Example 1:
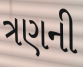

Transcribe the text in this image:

ત્રણની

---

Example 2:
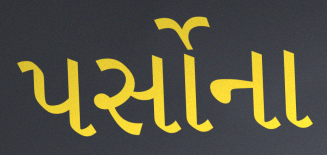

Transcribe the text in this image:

પર્સોના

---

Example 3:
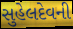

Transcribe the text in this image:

સુહેલદેવની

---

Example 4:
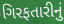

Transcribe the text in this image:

ગિરફતારીનું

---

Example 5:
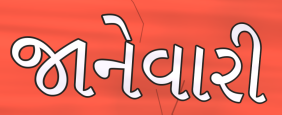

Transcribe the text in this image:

જાનેવારી